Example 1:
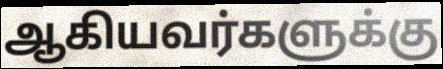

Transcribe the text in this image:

ஆகியவர்களுக்கு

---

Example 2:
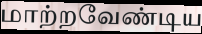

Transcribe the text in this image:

மாற்றவேண்டிய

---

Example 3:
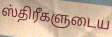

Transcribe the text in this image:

ஸ்திரீகளுடைய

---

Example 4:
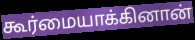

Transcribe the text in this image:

கூர்மையாக்கினான்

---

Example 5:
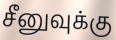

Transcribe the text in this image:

சீனுவுக்கு